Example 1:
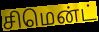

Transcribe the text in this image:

சிமென்ட்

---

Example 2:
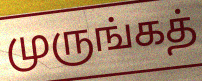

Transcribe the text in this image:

முருங்கத்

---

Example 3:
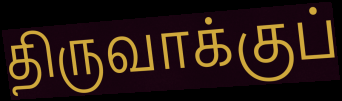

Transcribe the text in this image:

திருவாக்குப்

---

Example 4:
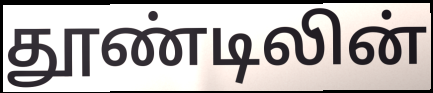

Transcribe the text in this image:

தூண்டிலின்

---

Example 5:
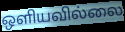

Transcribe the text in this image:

ஒளியவில்லை